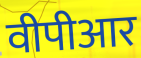
वीपीआर